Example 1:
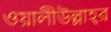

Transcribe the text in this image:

ওয়ালীউল্লাহ্‌র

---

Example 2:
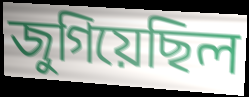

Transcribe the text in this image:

জুগিয়েছিল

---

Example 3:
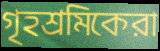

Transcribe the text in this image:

গৃহশ্রমিকেরা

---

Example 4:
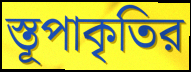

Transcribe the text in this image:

স্তূপাকৃতির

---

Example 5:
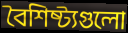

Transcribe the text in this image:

বৈশিষ্ট্যগুলো